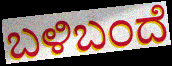
ಬಳಿಬಂದೆ